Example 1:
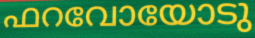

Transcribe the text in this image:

ഫറവോയോടു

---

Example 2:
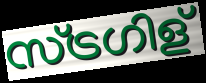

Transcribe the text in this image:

സ്ട്രഗിള്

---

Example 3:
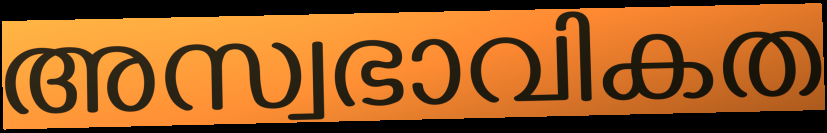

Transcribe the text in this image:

അസ്വഭാവികത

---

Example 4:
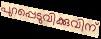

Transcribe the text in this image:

പുറപ്പെടുവിക്കുവിന്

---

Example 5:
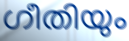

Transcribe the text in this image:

ഗീതിയും